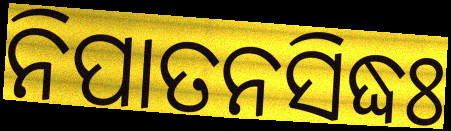
ନିପାତନସିଦ୍ଧଃ